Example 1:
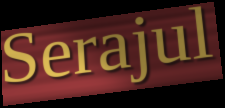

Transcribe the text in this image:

Serajul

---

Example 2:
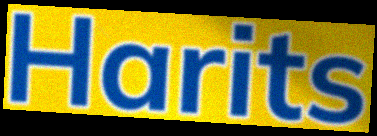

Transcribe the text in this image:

Harits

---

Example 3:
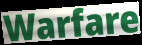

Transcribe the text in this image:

Warfare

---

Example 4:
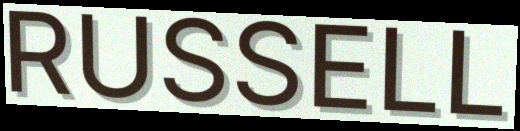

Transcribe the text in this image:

RUSSELL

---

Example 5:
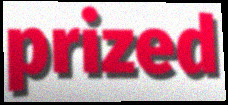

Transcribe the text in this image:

prized